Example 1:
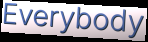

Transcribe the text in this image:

Everybody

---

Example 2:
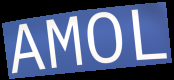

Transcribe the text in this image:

AMOL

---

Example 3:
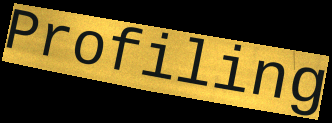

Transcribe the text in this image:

Profiling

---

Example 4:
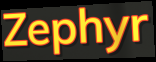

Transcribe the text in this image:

Zephyr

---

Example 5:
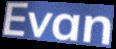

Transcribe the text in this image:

Evan